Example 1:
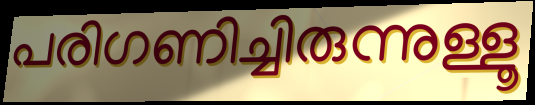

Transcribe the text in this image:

പരിഗണിച്ചിരുന്നുള്ളൂ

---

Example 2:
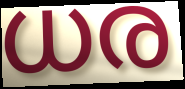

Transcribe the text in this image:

ധര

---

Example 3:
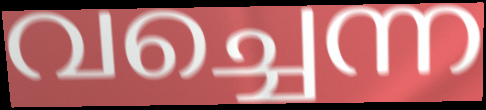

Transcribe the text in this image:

വച്ചെന്ന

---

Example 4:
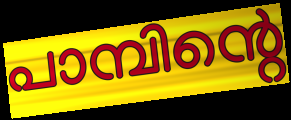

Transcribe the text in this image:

പാമ്പിന്റെ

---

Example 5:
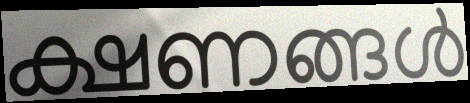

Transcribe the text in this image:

ക്ഷണങ്ങൾ